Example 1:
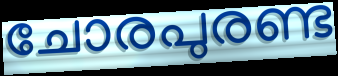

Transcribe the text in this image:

ചോരപുരണ്ട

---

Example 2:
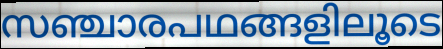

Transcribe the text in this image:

സഞ്ചാരപഥങ്ങളിലൂടെ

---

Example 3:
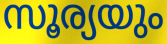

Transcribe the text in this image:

സൂര്യയും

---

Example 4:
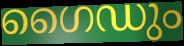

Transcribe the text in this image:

ഗൈഡും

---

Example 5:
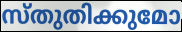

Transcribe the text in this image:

സ്തുതിക്കുമോ